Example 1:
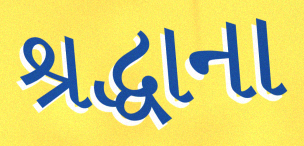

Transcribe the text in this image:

શ્રદ્ધાના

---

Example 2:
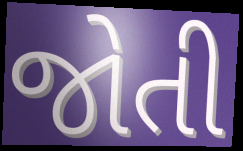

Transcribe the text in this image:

જોતી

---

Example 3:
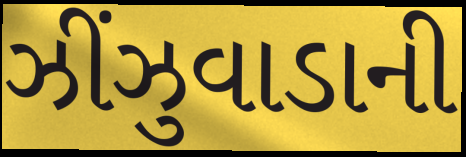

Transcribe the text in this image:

ઝીંઝુવાડાની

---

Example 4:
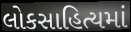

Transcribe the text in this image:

લોકસાહિત્યમાં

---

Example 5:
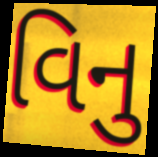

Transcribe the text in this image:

વિનુ